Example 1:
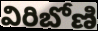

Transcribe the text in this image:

విరిబోణి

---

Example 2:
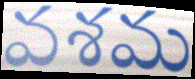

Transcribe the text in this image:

వశమ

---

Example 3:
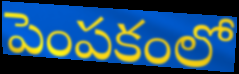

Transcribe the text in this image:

పెంపకంలో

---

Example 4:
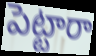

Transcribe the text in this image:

పెట్టారా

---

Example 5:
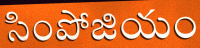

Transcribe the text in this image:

సింపోజియం